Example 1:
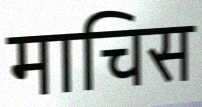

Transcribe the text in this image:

माचिस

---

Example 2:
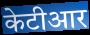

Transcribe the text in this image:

केटीआर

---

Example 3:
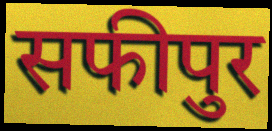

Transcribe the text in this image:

सफीपुर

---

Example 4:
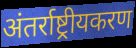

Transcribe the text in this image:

अंतर्राष्ट्रीयकरण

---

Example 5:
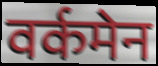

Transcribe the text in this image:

वर्कमेन